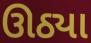
ઊઠ્યા